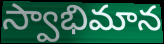
స్వాభిమాన